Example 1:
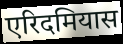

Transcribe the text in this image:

एरिदमियास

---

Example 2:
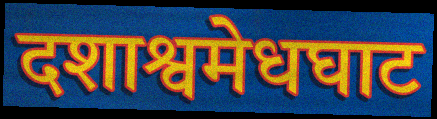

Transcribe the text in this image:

दशाश्वमेधघाट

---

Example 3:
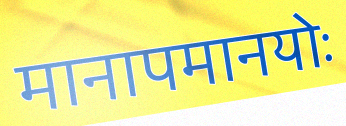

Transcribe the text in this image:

मानापमानयोः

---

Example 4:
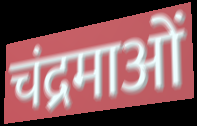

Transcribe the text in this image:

चंद्रमाओं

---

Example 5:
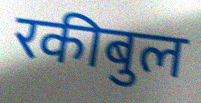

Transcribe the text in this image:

रकीबुल